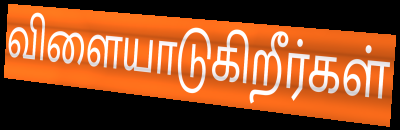
விளையாடுகிறீர்கள்